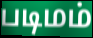
படிமம்